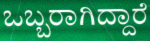
ಒಬ್ಬರಾಗಿದ್ದಾರೆ